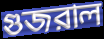
গুজরাল